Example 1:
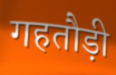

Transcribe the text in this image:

गहतौड़ी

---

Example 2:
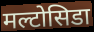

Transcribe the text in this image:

मल्टोसिडा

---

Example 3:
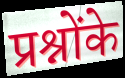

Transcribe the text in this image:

प्रश्नोंके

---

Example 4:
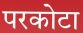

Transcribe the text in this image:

परकोटा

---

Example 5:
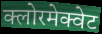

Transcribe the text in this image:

क्लोरमेक्वेट